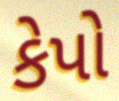
કેપો